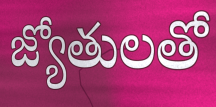
జ్యోతులతో